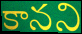
కానని